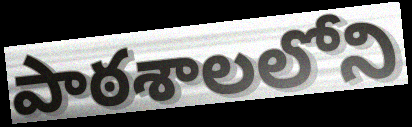
పాఠశాలలోని